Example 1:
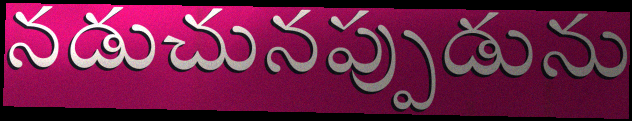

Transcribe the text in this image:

నడుచునప్పుడును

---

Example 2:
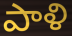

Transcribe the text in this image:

పాళి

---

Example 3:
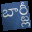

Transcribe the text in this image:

బార్ట్లీ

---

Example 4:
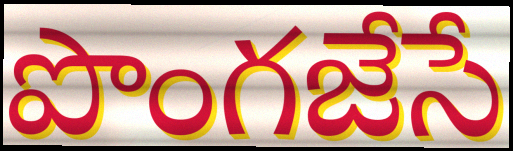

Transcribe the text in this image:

పొంగజేసే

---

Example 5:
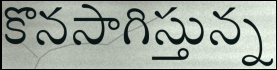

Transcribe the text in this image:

కొనసాగిస్తున్న